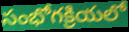
సంభోగక్రియలో